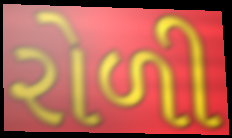
રોળી